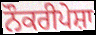
ਨੌਕਰੀਪੇਸ਼ਾ